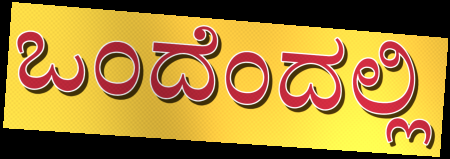
ಒಂದೆಂದಲ್ಲಿ